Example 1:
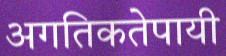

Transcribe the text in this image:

अगतिकतेपायी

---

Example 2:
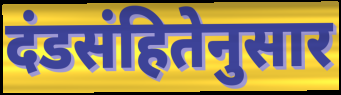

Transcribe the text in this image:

दंडसंहितेनुसार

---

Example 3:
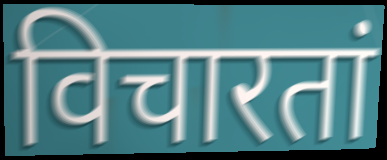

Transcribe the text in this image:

विचारतां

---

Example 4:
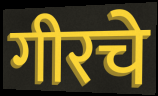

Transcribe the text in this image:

गीरचे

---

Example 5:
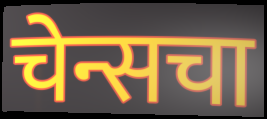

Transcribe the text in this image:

चेन्सचा